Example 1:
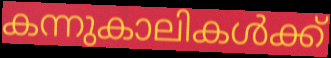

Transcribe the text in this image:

കന്നുകാലികൾക്ക്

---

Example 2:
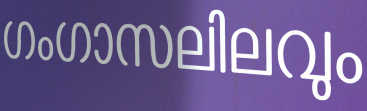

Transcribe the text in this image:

ഗംഗാസലിലവും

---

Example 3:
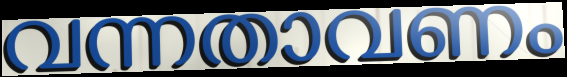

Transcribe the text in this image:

വന്നതാവണം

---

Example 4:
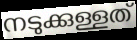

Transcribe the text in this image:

നടുക്കുള്ളത്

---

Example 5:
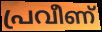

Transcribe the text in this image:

പ്രവീണ്